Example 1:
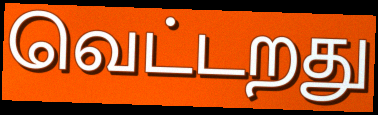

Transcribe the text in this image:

வெட்டறது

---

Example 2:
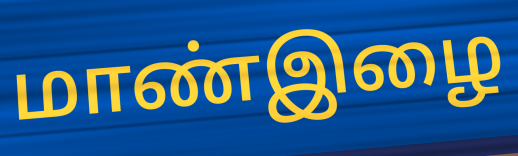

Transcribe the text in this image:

மாண்இழை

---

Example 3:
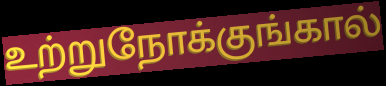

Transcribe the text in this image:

உற்றுநோக்குங்கால்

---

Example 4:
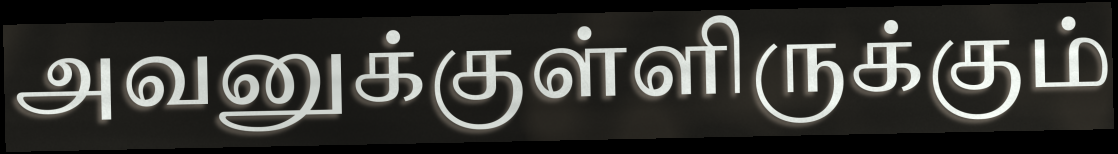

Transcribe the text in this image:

அவனுக்குள்ளிருக்கும்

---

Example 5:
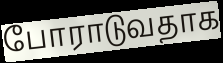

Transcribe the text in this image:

போராடுவதாக